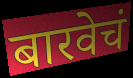
बारवेचं